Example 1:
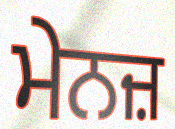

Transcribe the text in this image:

ਮੇਨਜ਼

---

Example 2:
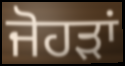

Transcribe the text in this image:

ਜੋਹੜਾਂ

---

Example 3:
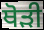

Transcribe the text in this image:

ਥੋੜੀ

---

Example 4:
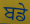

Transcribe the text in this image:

ਬਡੇ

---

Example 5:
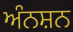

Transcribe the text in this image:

ਅੰਨਸ਼ਨ